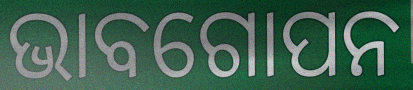
ଭାବଗୋପନ